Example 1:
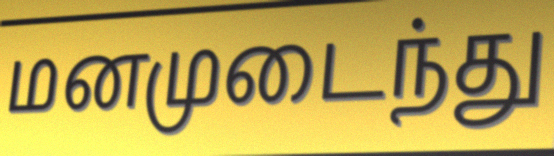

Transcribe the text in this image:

மனமுடைந்து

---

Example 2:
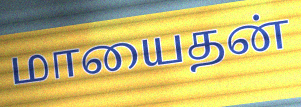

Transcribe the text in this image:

மாயைதன்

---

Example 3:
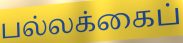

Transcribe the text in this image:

பல்லக்கைப்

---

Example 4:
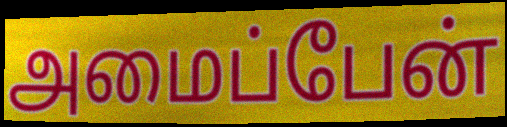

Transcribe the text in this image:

அமைப்பேன்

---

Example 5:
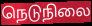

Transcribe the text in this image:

நெடுநிலை